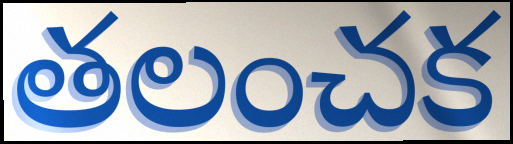
తలంచక